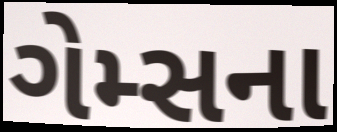
ગેમ્સના